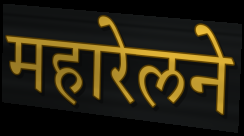
महारेलने